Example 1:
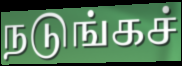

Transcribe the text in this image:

நடுங்கச்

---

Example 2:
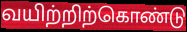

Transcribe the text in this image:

வயிற்றிற்கொண்டு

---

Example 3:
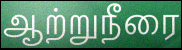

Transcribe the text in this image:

ஆற்றுநீரை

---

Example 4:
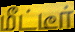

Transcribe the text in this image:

மீட்டீர்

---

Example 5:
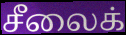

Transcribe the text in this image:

சீலைக்